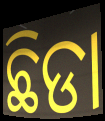
ଛିଡା